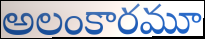
అలంకారమూ